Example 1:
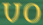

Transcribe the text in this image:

uo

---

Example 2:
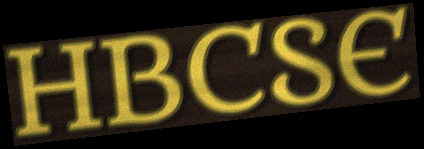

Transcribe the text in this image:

HBCSE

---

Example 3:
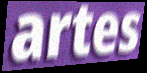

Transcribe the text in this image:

artes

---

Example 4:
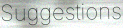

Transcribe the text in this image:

Suggestions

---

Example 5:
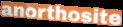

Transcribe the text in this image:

anorthosite